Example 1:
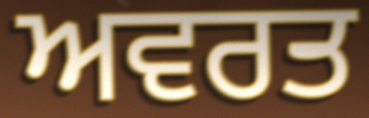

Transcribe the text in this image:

ਅਵਰਤ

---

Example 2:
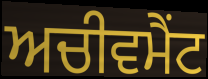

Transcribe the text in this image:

ਅਚੀਵਮੈਂਟ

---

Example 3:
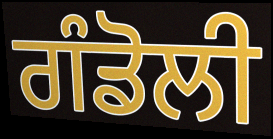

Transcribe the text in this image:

ਗੰਡੋਲੀ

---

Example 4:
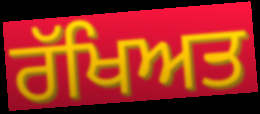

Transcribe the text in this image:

ਰੱਖਿਅਤ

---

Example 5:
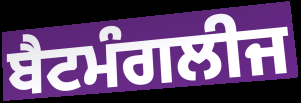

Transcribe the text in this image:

ਬੈਟਮੰਗਲੀਜ